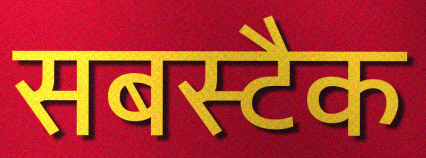
सबस्टैक